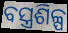
ବସ୍ତ୍ରଶିଳ୍ପ